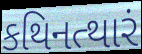
કથિનત્થારં